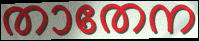
താതേന